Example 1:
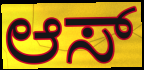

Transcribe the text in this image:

ಆಸ್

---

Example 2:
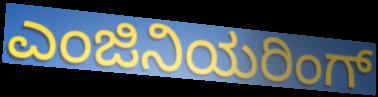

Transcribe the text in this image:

ಎಂಜಿನಿಯರಿಂಗ್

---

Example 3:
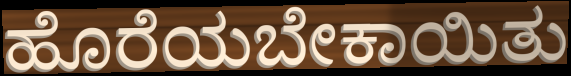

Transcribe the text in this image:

ಹೊರೆಯಬೇಕಾಯಿತು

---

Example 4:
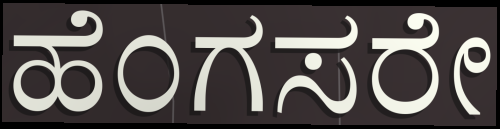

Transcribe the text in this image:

ಹೆಂಗಸರೇ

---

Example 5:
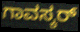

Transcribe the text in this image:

ಗಾವಸ್ಕರ್